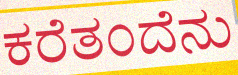
ಕರೆತಂದೆನು